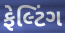
ફેલ્ટિંગ